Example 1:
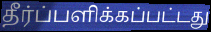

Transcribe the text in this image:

தீர்ப்பளிக்கப்பட்டது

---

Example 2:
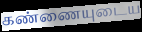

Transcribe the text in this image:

கண்ணையுடைய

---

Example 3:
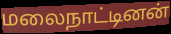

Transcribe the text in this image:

மலைநாட்டினன்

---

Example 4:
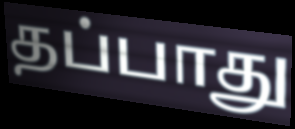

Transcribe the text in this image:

தப்பாது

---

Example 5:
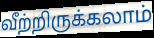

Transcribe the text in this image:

வீற்றிருக்கலாம்